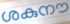
ശകുനൗ